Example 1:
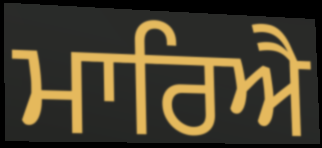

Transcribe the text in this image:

ਮਾਰਿਐ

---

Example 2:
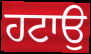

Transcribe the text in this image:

ਹਟਾਉ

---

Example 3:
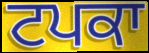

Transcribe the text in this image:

ਟਪਕਾ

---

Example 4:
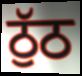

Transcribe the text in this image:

ਠੁੱਠ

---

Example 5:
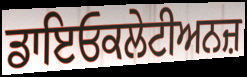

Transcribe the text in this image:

ਡਾਇਓਕਲੇਟੀਅਨਜ਼